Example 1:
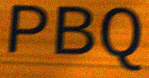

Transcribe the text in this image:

PBQ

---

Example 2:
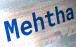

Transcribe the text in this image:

Mehtha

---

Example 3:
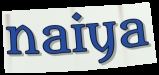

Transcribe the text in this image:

naiya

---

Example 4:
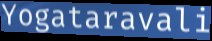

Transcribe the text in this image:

Yogataravali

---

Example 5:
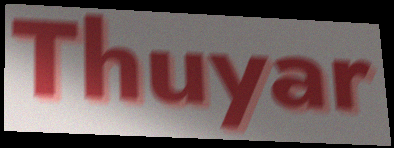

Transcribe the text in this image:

Thuyar